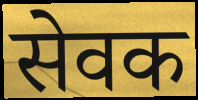
सेवक